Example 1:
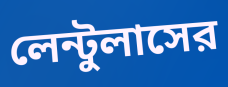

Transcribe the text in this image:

লেন্টুলাসের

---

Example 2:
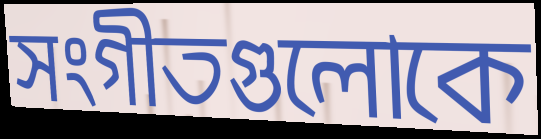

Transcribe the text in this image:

সংগীতগুলোকে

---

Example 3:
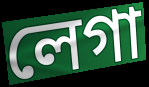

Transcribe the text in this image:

লেগা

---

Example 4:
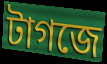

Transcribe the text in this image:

টাগজে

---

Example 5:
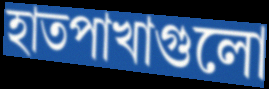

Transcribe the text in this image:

হাতপাখাগুলো